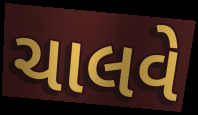
ચાલવે